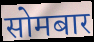
सोमबार